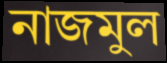
নাজমুল